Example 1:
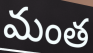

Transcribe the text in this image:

మంత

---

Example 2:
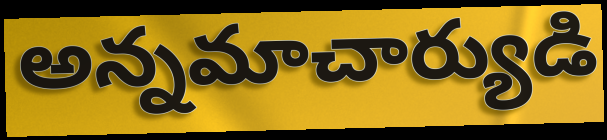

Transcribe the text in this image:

అన్నమాచార్యుడి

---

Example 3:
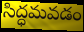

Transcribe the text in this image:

సిద్ధమవడం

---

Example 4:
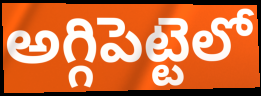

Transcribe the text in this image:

అగ్గిపెట్టెలో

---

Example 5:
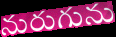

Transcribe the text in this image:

నురుగును